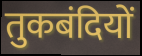
तुकबंदियों